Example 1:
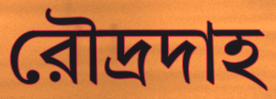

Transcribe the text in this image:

রৌদ্রদাহ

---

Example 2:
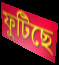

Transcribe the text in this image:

ফুটিছে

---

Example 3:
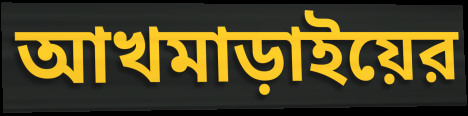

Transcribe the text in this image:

আখমাড়াইয়ের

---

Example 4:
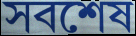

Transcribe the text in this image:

সবশেষ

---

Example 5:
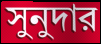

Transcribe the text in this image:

সুনুদার